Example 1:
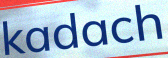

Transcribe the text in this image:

kadach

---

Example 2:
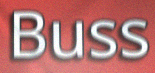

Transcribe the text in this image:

Buss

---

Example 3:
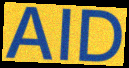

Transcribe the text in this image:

AID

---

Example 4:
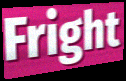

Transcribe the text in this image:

Fright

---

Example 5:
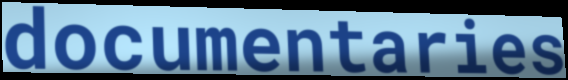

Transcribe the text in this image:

documentaries